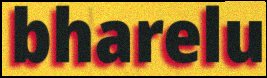
bharelu